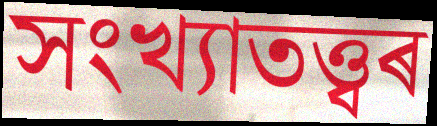
সংখ্যাতত্ত্বৰ